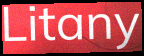
Litany